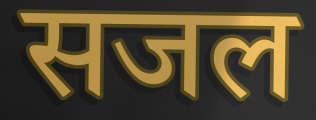
सजल